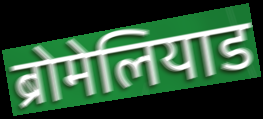
ब्रोमेलियाड